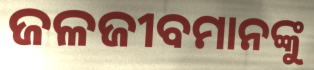
ଜଳଜୀବମାନଙ୍କୁ